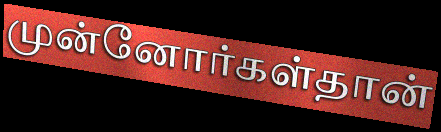
முன்னோர்கள்தான்